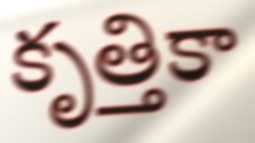
కృత్తికా